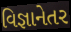
વિજ્ઞાનેતર